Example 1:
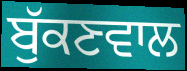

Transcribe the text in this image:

ਬੁੱਕਣਵਾਲ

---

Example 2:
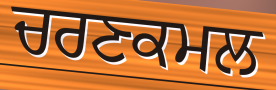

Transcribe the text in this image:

ਚਰਣਕਮਲ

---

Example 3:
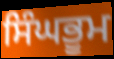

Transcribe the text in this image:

ਸਿੰਘਭੂਮ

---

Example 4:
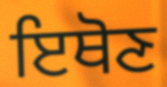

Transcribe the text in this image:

ਇਥੋਣ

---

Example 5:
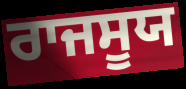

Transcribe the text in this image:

ਰਾਜਸੂਯ